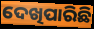
ଦେଖିପାରିଛି